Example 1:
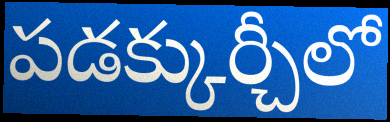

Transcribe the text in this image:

పడక్కుర్చీలో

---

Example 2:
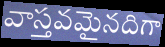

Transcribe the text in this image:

వాస్తవమైనదిగా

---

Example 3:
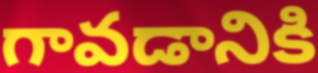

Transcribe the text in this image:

గావడానికి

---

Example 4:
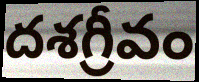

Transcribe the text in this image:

దశగ్రీవం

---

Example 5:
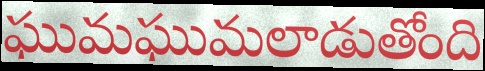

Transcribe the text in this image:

ఘుమఘుమలాడుతోంది